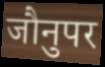
जौनुपर